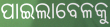
ପାଇଲାବେଳକୁ